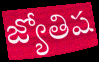
జ్యోతిష